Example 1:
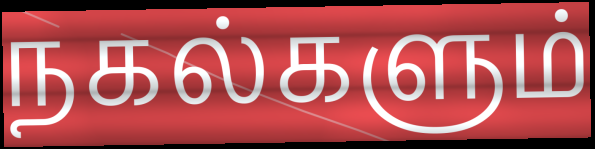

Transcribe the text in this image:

நகல்களும்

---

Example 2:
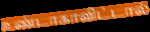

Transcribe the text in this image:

உண்டாகாவிட்டால்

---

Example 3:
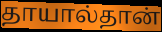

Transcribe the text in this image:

தாயால்தான்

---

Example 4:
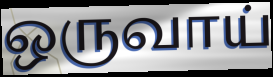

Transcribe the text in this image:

ஒருவாய்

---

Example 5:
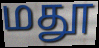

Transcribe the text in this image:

மதூ